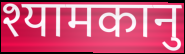
श्यामकानु